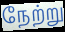
நேற்று